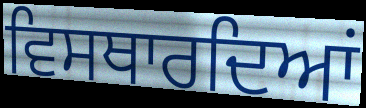
ਵਿਸਥਾਰਦਿਆਂ